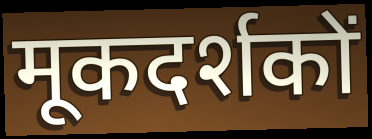
मूकदर्शकों